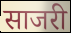
साजरी